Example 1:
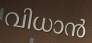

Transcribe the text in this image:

വിധാൻ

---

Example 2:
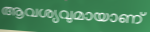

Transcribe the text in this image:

ആവശ്യവുമായാണ്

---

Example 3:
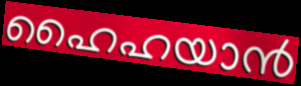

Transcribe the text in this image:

ഹൈഹയാൻ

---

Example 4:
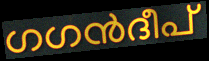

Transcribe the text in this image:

ഗഗൻദീപ്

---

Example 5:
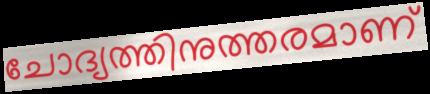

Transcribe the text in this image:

ചോദ്യത്തിനുത്തരമാണ്